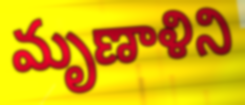
మృణాళిని